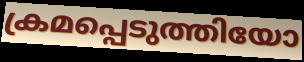
ക്രമപ്പെടുത്തിയോ